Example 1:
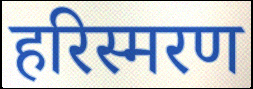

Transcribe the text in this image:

हरिस्मरण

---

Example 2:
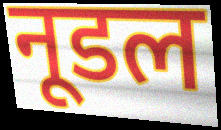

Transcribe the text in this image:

नूडल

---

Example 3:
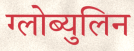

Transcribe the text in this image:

ग्लोब्युलिन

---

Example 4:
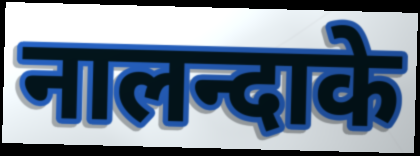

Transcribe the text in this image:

नालन्दाके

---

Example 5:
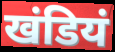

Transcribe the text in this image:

खंडियं